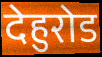
देहुरोड